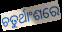
ଚତୁର୍ଥାଂଶରେ